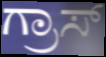
ಗ್ರಾಸ್